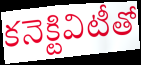
కనెక్టివిటీతో